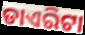
ଡାଏରିଟା